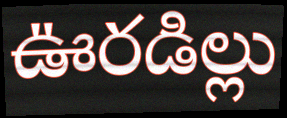
ఊరడిల్లు